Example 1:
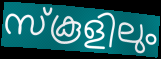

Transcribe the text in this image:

സ്കൂളിലും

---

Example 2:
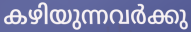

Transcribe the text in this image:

കഴിയുന്നവർക്കു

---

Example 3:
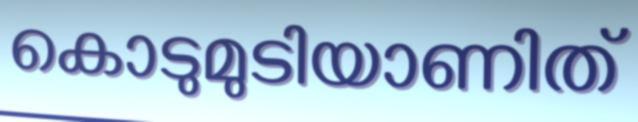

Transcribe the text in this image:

കൊടുമുടിയാണിത്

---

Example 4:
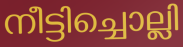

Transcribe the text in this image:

നീട്ടിച്ചൊല്ലി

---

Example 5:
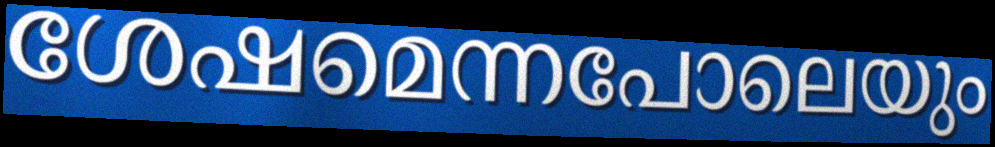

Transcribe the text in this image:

ശേഷമെന്നപോലെയും